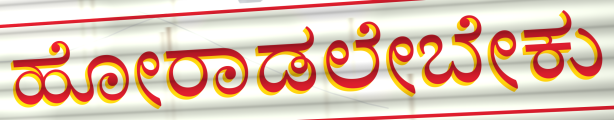
ಹೋರಾಡಲೇಬೇಕು